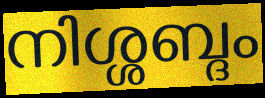
നിശ്ശബ്ദം